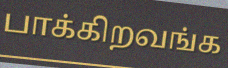
பாக்கிறவங்க